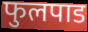
फुलपाड